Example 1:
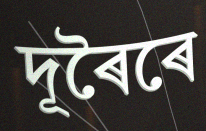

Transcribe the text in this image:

দূৰৈৰে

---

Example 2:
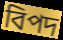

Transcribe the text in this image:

বিপদ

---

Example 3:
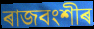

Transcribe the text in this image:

ৰাজবংশীৰ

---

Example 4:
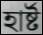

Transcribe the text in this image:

হাৰ্ষ্ট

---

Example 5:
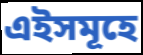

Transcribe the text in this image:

এইসমূহে